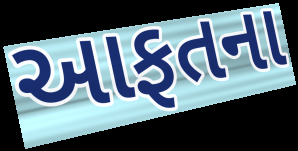
આફતના